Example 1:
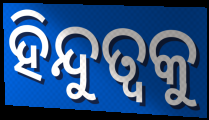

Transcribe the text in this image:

ହିନ୍ଦୁତ୍ୱକୁ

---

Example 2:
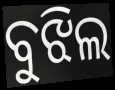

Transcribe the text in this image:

ବୁଝିଲ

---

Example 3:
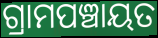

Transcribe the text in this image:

ଗ୍ରାମପଞ୍ଚାୟତ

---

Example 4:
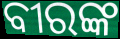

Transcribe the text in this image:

ବୀରଙ୍କ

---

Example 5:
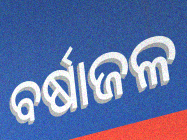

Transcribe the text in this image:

ବର୍ଷାଜଳ